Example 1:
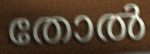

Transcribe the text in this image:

തോൽ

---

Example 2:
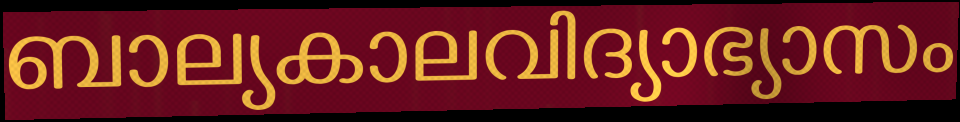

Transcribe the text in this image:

ബാല്യകാലവിദ്യാഭ്യാസം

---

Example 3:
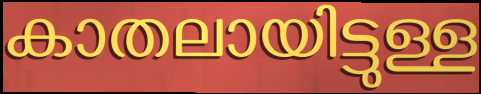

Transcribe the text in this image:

കാതലായിട്ടുള്ള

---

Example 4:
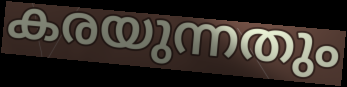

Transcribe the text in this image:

കരയുന്നതും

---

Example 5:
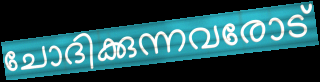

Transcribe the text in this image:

ചോദിക്കുന്നവരോട്